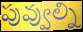
పువ్వుల్ని